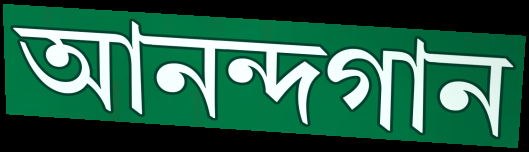
আনন্দগান